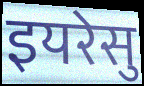
इयरेसु